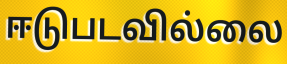
ஈடுபடவில்லை